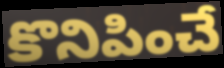
కొనిపించే